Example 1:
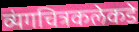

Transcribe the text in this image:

व्यंगचित्रकलेकडे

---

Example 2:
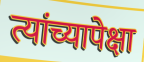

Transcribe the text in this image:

त्यांच्यापेक्षा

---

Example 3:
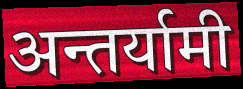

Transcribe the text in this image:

अन्तर्यामी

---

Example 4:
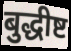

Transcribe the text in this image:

बुद्धीष्ट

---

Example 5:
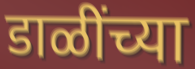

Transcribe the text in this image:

डाळींच्या